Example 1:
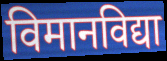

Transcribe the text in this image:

विमानविद्या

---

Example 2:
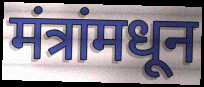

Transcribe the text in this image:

मंत्रांमधून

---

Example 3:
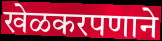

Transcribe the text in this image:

खेळकरपणाने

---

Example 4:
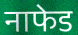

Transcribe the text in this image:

नाफेड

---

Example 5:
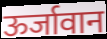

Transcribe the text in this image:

ऊर्जावान